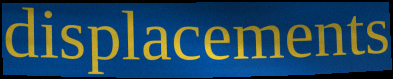
displacements